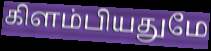
கிளம்பியதுமே